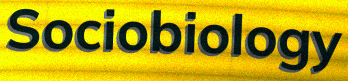
Sociobiology